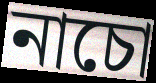
নাচো